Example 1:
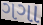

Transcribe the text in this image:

ગગા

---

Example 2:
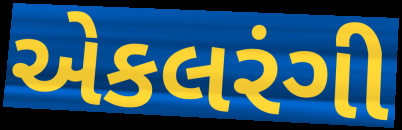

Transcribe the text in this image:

એકલરંગી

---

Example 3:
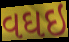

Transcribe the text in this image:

વઘઇ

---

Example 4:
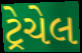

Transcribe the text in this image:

ટ્રેચેલ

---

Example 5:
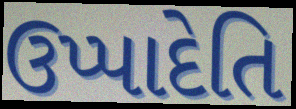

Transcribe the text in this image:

ઉપ્પાદેતિ